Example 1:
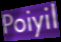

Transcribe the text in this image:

Poiyil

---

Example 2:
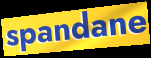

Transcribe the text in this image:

spandane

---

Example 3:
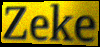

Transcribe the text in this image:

Zeke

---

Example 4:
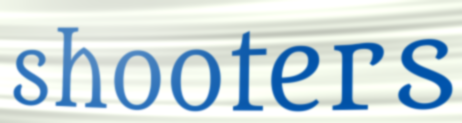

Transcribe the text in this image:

shooters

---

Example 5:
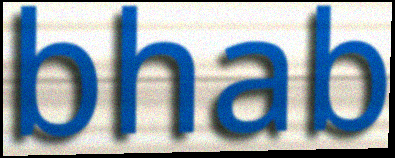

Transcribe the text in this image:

bhab